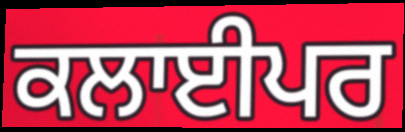
ਕਲਾਈਪਰ